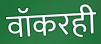
वॉकरही